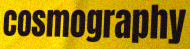
cosmography